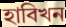
হাবিখন